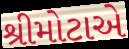
શ્રીમોટાએ